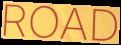
ROAD